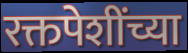
रक्तपेशींच्या